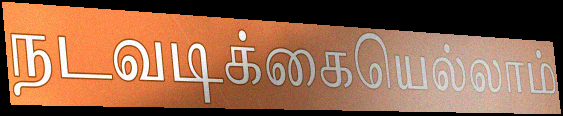
நடவடிக்கையெல்லாம்